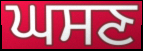
ਘਸਣ